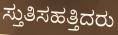
ಸ್ತುತಿಸಹತ್ತಿದರು